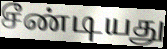
சீண்டியது